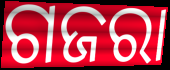
ଗଜରା